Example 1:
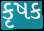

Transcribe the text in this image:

કૃષક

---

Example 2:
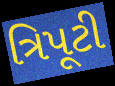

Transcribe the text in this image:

ત્રિપૂટી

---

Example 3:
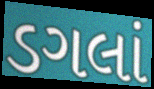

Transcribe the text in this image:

ડગલાં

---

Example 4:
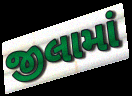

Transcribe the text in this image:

જીલામાં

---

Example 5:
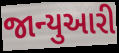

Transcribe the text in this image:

જાન્યુઆરી